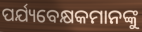
ପର୍ଯ୍ୟବେକ୍ଷକମାନଙ୍କୁ